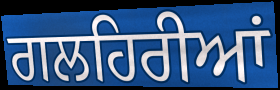
ਗਲਹਿਰੀਆਂ